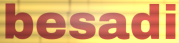
besadi